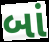
બાં